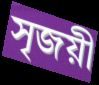
সৃজয়ী